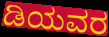
ಡಿಯವರ